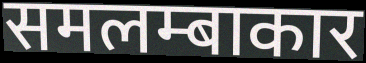
समलम्बाकार